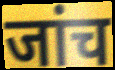
जांच